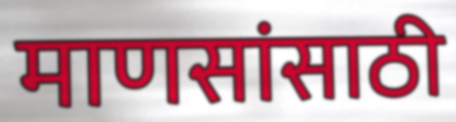
माणसांसाठी